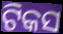
ଟିକସ